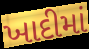
ખાદીમાં